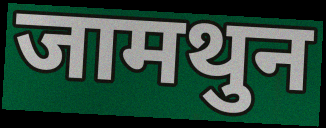
जामथुन